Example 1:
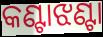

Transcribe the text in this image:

କଣ୍ଟାଝଣ୍ଟା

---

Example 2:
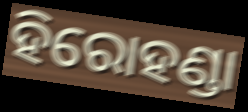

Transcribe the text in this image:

ହିରୋହଣ୍ଡା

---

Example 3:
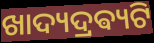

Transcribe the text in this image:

ଖାଦ୍ୟଦ୍ରଵ୍ୟଟି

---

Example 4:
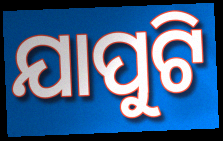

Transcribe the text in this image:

ଯାପୁଟି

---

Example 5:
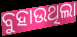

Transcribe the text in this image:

ବୁହାଉଥିଲା